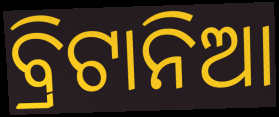
ବ୍ରିଟାନିଆ